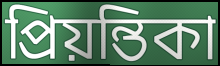
প্রিয়ন্তিকা